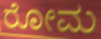
ರೋಮ